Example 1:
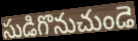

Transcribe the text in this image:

సుడిగొనుచుండె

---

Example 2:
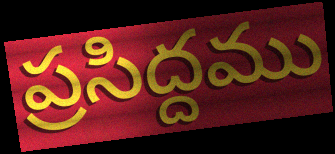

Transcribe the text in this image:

ప్రసిద్దము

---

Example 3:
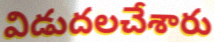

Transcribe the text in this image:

విడుదలచేశారు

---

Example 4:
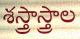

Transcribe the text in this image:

శస్త్రాస్త్రాల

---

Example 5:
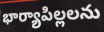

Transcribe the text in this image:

భార్యాపిల్లలను